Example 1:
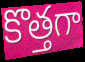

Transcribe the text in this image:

కొత్తగా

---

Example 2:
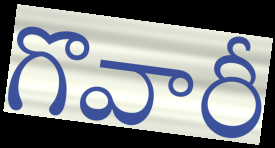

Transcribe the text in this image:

గొవారీ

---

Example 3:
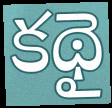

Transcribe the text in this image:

కథై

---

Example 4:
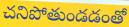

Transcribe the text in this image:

చనిపోతుండడంతో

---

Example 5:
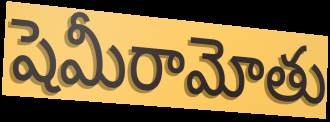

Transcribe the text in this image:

షెమీరామోతు